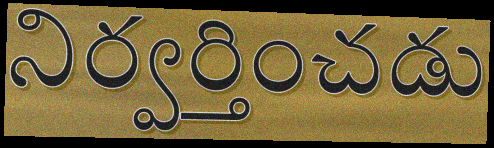
నిర్వర్తించడు